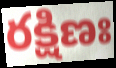
రక్షిణః